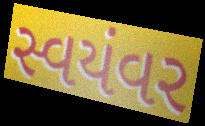
સ્વયંવર